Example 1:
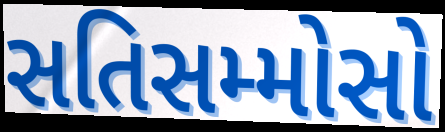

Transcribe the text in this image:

સતિસમ્મોસો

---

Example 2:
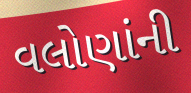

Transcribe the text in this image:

વલોણાંની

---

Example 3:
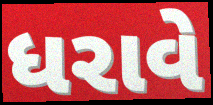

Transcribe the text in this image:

ધરાવે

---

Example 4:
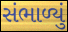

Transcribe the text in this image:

સંભાળ્યું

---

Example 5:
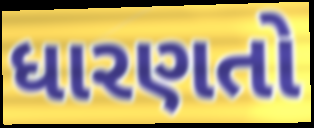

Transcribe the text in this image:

ધારણતો